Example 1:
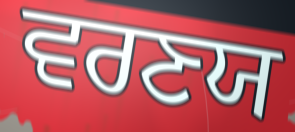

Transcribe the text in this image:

ਵਰਣਯ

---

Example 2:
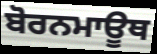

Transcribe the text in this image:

ਬੋਰਨਮਾਊਥ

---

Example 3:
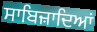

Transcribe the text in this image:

ਸਾਬਿਜ਼ਾਦਿਆਂ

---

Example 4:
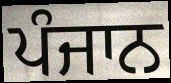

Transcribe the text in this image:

ਪੰਜਾਨ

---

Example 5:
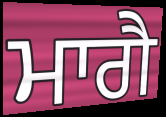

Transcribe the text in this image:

ਮਾਗੈ